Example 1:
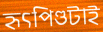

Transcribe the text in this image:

হৃৎপিণ্ডটাই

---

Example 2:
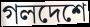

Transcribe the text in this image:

গলদেশে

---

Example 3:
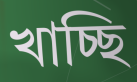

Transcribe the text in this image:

খাচ্ছি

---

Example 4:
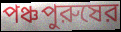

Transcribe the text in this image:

পঞ্চপুরুষের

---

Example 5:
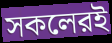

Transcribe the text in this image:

সকলেরই